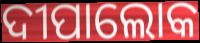
ଦୀପାଲୋକ